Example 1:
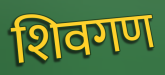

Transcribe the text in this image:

शिवगण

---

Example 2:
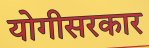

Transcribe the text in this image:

योगीसरकार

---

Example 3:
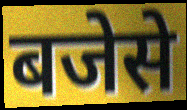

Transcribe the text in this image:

बजेसे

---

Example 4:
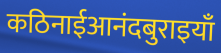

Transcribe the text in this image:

कठिनाईआनंदबुराइयाँ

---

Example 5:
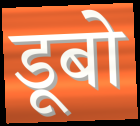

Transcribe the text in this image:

डूबो